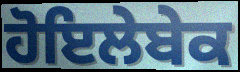
ਹੋਇਲੇਬੇਕ